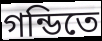
গন্ডিতে